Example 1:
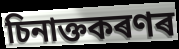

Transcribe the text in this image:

চিনাক্তকৰণৰ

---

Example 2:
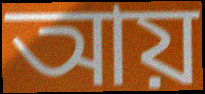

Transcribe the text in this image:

আয়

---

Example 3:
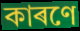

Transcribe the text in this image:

কাৰণে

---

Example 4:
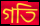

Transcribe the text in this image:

গতি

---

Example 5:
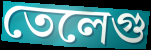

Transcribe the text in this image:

তেলেগু